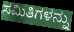
ಸಮಿತಿಗಳನ್ನು